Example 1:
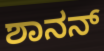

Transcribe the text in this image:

ಶಾನನ್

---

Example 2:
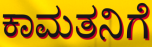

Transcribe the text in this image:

ಕಾಮತನಿಗೆ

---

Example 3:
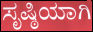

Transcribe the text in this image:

ಸೃಷ್ಠಿಯಾಗಿ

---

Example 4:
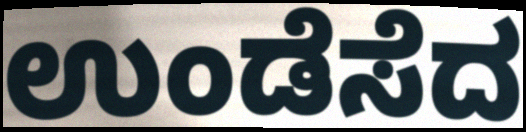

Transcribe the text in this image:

ಉಂಡೆಸೆದ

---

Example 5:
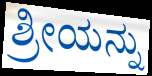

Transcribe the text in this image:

ಶ್ರೀಯನ್ನು